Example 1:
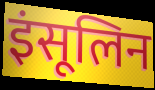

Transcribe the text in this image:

इंसूलिन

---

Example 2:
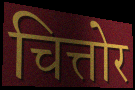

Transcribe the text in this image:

चित्तोर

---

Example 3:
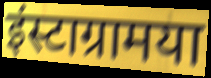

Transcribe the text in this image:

इंस्टाग्रामया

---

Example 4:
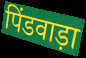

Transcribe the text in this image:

पिंडवाड़ा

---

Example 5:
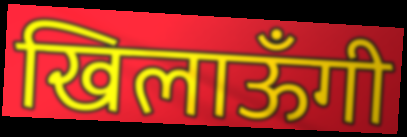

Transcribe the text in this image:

खिलाऊँगी